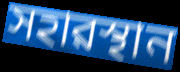
সহাৱস্থান